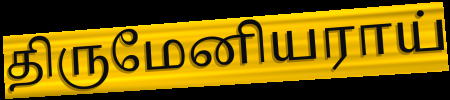
திருமேனியராய்